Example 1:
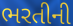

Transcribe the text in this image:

ભરતીની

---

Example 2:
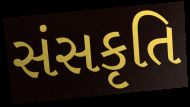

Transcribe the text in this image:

સંસકૃતિ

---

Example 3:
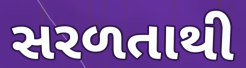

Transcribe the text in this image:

સરળતાથી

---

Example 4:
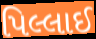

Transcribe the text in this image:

પિલ્લાઈ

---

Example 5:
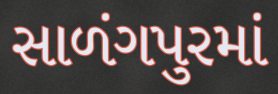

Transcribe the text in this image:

સાળંગપુરમાં